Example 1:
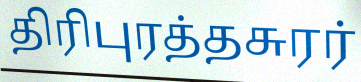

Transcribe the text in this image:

திரிபுரத்தசுரர்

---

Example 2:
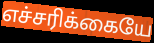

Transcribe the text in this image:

எச்சரிக்கையே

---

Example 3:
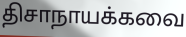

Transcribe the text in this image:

திசாநாயக்கவை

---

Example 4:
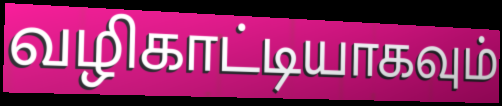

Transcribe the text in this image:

வழிகாட்டியாகவும்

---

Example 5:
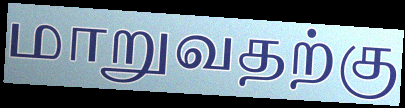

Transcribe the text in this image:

மாறுவதற்கு